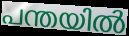
പന്തയിൽ